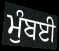
ਮੁੰਬਈ